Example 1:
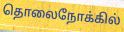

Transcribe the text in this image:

தொலைநோக்கில்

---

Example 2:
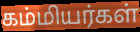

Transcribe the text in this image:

கம்மியர்கள்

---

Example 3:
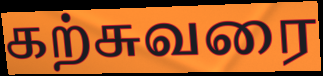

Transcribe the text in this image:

கற்சுவரை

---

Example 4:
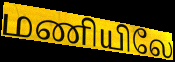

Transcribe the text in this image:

மணியிலே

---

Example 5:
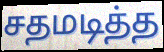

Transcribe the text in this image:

சதமடித்த